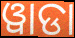
ୱାଡା